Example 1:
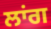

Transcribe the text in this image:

ਲਾਂਗ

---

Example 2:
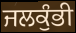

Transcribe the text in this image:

ਜਲਕੁੰਭੀ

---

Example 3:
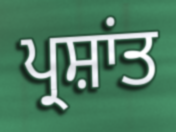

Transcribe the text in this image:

ਪ੍ਰਸ਼ਾਂਤ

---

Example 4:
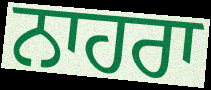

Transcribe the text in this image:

ਨਾਹਰਾ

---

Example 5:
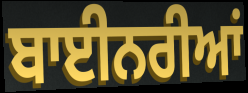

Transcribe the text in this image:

ਬਾਈਨਰੀਆਂ